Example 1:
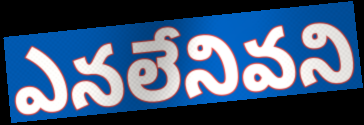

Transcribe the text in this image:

ఎనలేనివని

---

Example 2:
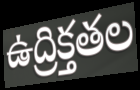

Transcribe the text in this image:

ఉద్రిక్తతల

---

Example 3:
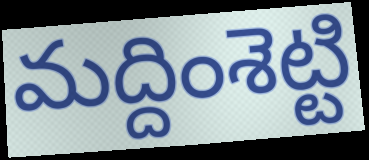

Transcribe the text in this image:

మద్దింశెట్టి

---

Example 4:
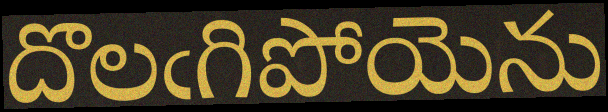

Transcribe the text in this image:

దొలఁగిపోయెను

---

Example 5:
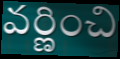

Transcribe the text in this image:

వర్ణించి